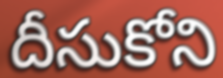
దీసుకోని